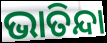
ଭାତିନ୍ଦା